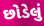
છોડેલું